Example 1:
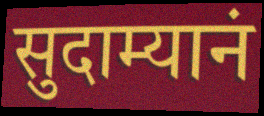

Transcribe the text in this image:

सुदाम्यानं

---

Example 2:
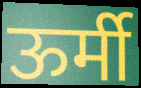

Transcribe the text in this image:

ऊर्मी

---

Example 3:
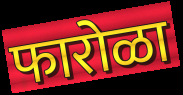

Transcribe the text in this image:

फारोळा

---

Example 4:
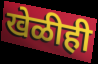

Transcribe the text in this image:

खेळीही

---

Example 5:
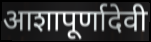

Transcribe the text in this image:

आशापूर्णादेवी